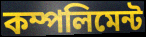
কম্পলিমেন্ট